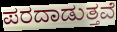
ಪರದಾಡುತ್ತವೆ